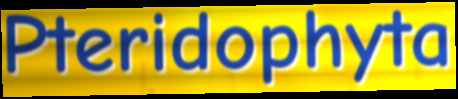
Pteridophyta